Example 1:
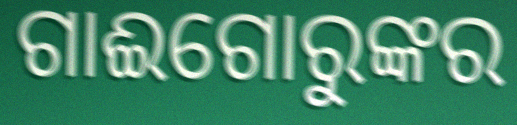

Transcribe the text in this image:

ଗାଈଗୋରୁଙ୍କର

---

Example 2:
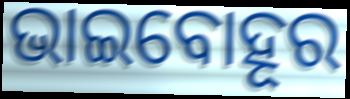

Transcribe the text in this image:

ଭାଇବୋହୂର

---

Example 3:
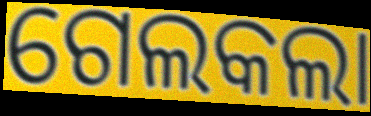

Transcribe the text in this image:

ଗେଲକଲା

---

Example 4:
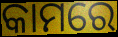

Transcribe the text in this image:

କାମରେ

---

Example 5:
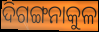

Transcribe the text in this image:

ଦିଗଙ୍ଗନାକୁଳ